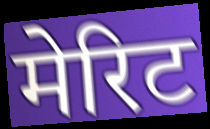
मेरिट